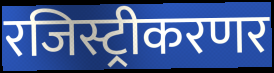
रजिस्ट्रीकरणर